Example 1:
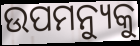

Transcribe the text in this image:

ଉପମନ୍ୟୁକୁ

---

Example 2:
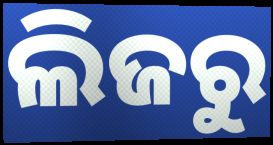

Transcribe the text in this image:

ଲିଜରୁ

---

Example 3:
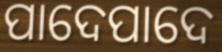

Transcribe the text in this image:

ପାଦେପାଦେ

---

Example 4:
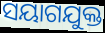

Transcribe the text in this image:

ସୟାଗଯୁକ୍ତ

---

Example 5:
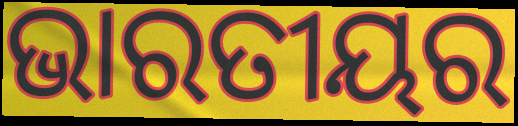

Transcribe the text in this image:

ଭାରତୀୟର